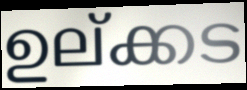
ഉല്ക്കട